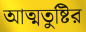
আত্মতুষ্টির